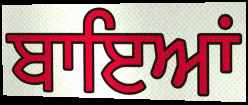
ਬਾਇਆਂ